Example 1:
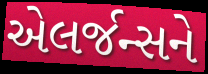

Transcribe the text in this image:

એલર્જન્સને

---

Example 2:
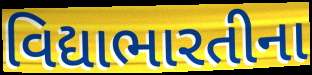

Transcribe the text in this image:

વિદ્યાભારતીના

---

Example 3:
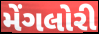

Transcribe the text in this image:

મેંગલોરી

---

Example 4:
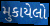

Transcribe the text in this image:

મુકાયેલો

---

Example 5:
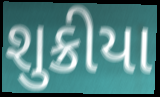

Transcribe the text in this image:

શુક્રીયા